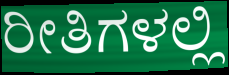
ರೀತಿಗಳಲ್ಲಿ